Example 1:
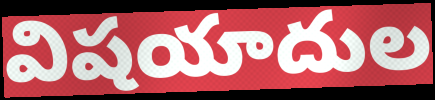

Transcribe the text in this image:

విషయాదుల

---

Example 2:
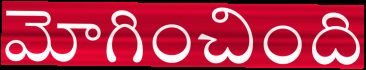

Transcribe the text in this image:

మోగించింది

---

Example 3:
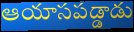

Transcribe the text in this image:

ఆయాసపడ్డాడు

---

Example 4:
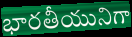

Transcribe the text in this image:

భారతీయునిగా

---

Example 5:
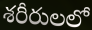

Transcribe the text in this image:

శరీరులలో